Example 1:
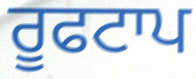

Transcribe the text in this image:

ਰੂਫਟਾਪ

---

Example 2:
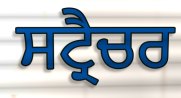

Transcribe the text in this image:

ਸਟ੍ਰੈਚਰ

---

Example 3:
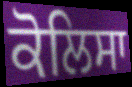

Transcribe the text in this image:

ਕੋਲਿਸਾ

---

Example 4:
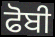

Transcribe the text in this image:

ਫੋਬੀ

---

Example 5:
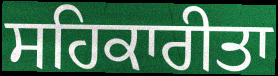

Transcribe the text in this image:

ਸਹਿਕਾਰੀਤਾ